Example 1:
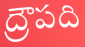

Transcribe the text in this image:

ద్రౌపది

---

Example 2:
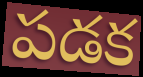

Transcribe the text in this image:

పడక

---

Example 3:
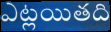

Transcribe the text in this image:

ఎట్లయితది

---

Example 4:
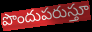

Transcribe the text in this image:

పొందుపరుస్తూ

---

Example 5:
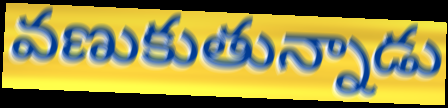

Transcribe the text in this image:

వణుకుతున్నాడు